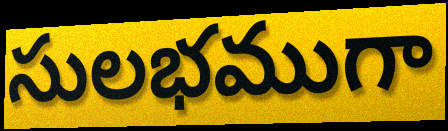
సులభముగా